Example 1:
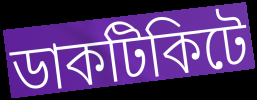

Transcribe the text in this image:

ডাকটিকিটে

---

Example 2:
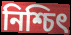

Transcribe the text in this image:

নিশ্চিৎ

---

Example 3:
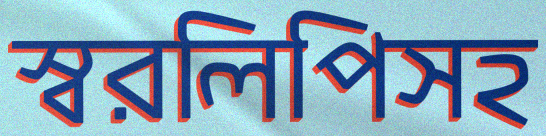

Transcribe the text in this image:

স্বরলিপিসহ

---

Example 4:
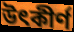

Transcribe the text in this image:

উৎকীর্ণ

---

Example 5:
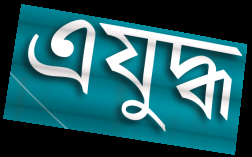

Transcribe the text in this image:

এযুদ্ধ